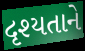
દૃશ્યતાને